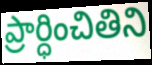
ప్రార్ధించితిని